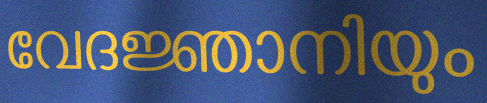
വേദജ്ഞാനിയും